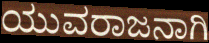
ಯುವರಾಜನಾಗಿ